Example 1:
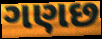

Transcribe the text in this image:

ગણછ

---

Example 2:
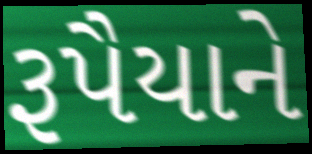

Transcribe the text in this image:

રૂપૈયાને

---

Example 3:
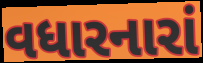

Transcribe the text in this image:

વધારનારાં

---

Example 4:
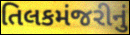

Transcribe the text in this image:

તિલકમંજરીનું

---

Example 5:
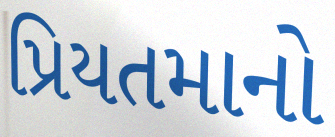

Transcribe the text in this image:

પ્રિયતમાનો